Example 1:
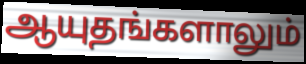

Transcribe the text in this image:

ஆயுதங்களாலும்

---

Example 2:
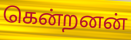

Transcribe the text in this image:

கென்றனன்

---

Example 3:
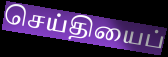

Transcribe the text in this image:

செய்தியைப்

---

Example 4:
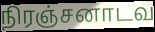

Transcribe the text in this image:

நிரஞ்சனாடவ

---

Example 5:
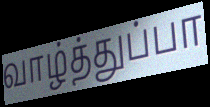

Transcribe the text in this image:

வாழ்த்துப்பா